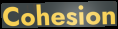
Cohesion